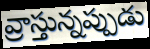
వ్రాస్తున్నప్పుడు